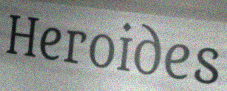
Heroides